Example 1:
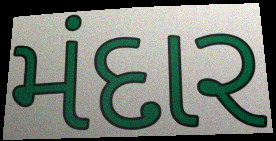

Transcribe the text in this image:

મંદાર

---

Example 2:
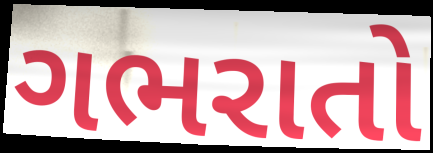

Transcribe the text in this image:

ગભરાતો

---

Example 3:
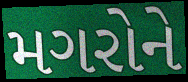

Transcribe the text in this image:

મગરોને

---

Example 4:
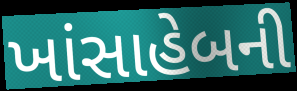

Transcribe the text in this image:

ખાંસાહેબની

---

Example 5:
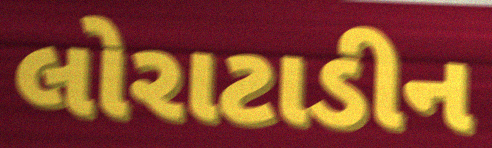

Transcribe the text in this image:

લોરાટાડીન